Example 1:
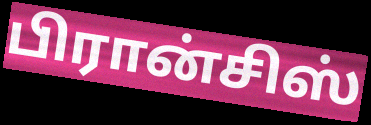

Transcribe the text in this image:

பிரான்சிஸ்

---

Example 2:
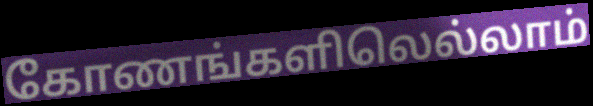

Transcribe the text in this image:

கோணங்களிலெல்லாம்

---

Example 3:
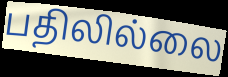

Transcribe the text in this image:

பதிலில்லை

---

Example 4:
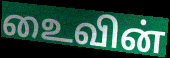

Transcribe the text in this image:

உைவின்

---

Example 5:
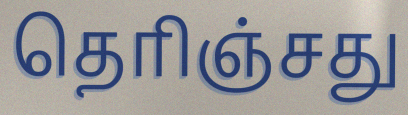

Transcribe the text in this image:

தெரிஞ்சது